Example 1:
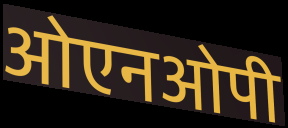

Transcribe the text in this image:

ओएनओपी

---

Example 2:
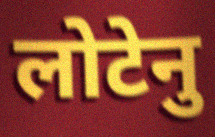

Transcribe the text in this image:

लोटेनु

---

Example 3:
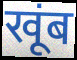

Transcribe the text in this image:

खूंब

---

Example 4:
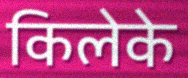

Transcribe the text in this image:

किलेके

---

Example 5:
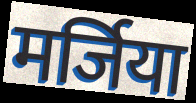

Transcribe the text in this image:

मर्जिया